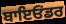
ਬਾਇਓਂਡਰ